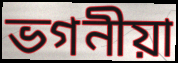
ভগনীয়া